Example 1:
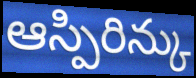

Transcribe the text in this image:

ఆస్పిరిన్కు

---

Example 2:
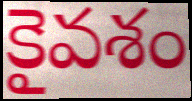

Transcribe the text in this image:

కైవశం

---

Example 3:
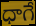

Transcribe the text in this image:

ధాగే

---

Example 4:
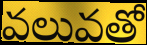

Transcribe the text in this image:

వలువతో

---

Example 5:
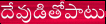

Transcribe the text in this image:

దేవుడితోపాటు